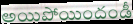
అయిపోయిందండీ